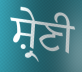
ਸ਼੍ਰੇਣੀ